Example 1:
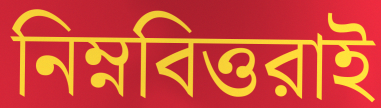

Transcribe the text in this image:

নিম্নবিত্তরাই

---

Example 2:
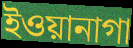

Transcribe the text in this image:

ইওয়ানাগা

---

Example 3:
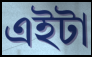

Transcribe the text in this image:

এইটা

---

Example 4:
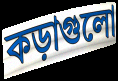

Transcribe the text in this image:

কড়াগুলো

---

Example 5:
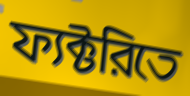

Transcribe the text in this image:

ফ্যক্টরিতে